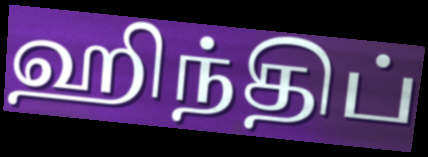
ஹிந்திப்